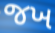
જખ